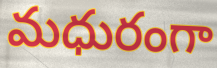
మధురంగా